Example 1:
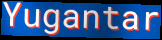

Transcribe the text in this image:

Yugantar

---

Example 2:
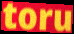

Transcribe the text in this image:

toru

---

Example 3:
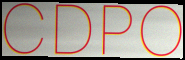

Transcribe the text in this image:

CDPO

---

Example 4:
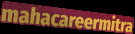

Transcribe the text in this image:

mahacareermitra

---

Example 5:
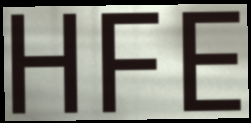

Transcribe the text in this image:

HFE